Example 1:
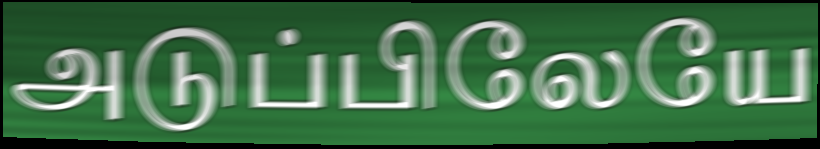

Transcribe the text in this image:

அடுப்பிலேயே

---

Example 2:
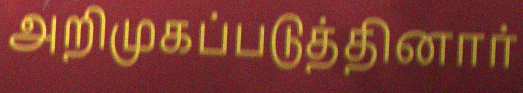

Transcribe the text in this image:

அறிமுகப்படுத்தினார்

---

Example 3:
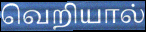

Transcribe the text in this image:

வெறியால்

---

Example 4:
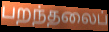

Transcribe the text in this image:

பறந்தலைப்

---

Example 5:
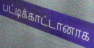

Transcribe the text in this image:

பட்டிக்காட்டானாக